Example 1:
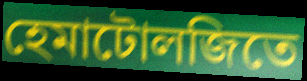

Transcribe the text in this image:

হেমাটোলজিতে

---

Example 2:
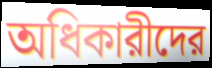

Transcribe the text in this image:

অধিকারীদের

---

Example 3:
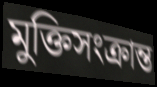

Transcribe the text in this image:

মুক্তিসংক্রান্ত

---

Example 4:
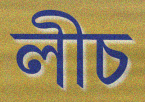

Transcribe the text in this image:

লীচ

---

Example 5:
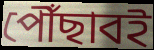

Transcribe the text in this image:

পৌঁছাবই